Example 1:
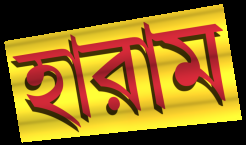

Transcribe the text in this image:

হারাম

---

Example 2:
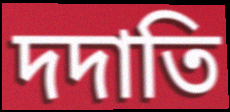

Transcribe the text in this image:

দদাতি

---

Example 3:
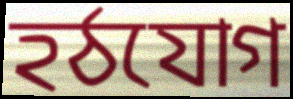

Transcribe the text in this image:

হঠযোগ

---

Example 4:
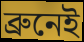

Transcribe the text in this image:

ব্রুনেই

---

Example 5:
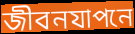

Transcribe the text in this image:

জীবনযাপনে